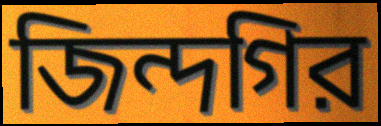
জিন্দগির